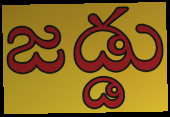
జడ్డు